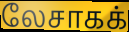
லேசாகக்